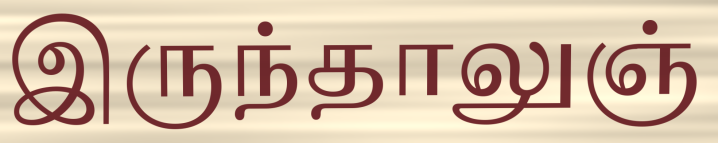
இருந்தாலுஞ்